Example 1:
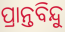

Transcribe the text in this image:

ପ୍ରାନ୍ତବିନ୍ଦୁ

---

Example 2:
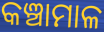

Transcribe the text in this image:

କଞ୍ଚାମାଳ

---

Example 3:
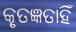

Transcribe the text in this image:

କୃତଜ୍ଞତାହିଁ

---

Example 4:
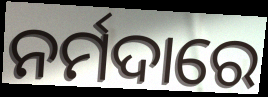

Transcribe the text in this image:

ନର୍ମଦାରେ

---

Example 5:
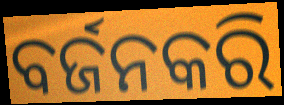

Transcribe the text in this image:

ବର୍ଜନକରି